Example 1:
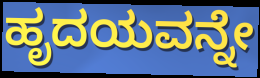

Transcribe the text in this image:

ಹೃದಯವನ್ನೇ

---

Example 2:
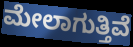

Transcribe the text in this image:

ಮೇಲಾಗುತ್ತಿವೆ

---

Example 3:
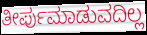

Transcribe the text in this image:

ತೀರ್ಪುಮಾಡುವದಿಲ್ಲ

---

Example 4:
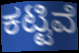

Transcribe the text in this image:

ಕಟ್ಟಿವೆ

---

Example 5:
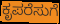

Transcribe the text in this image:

ಕೃಪರೆಸುಗೆ